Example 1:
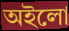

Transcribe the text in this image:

অইলো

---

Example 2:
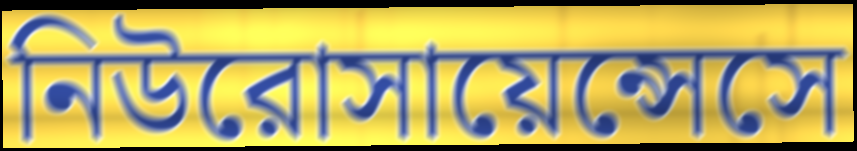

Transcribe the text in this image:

নিউরোসায়েন্সেসে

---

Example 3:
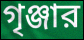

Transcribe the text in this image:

গৃঞ্জার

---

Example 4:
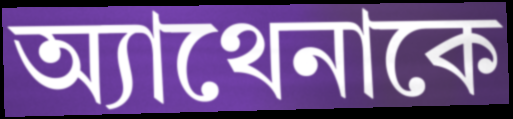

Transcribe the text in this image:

অ্যাথেনাকে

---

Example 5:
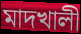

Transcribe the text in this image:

মাদখালী